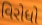
વિરોધો